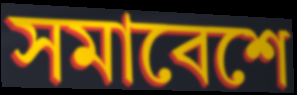
সমাবেশে